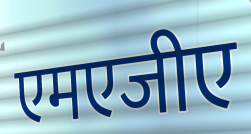
एमएजीए